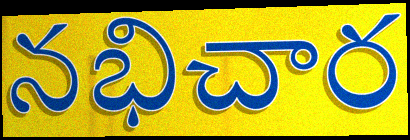
నభిచార